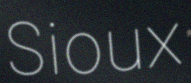
Sioux